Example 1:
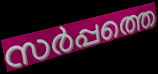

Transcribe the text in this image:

സർപ്പത്തെ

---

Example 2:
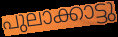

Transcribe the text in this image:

പുലാക്കാട്ടു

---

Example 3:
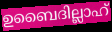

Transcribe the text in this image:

ഉബൈദില്ലാഹ്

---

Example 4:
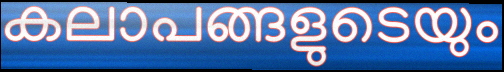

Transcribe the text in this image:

കലാപങ്ങളുടെയും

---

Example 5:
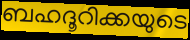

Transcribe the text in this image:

ബഹദൂറിക്കയുടെ